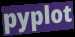
pyplot